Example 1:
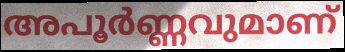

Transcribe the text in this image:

അപൂർണ്ണവുമാണ്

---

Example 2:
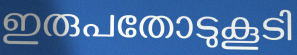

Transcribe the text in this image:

ഇരുപതോടുകൂടി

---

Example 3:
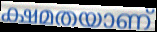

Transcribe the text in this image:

ക്ഷമതയാണ്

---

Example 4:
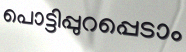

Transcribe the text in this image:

പൊട്ടിപ്പുറപ്പെടാം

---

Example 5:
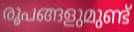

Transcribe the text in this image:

രൂപങ്ങളുമുണ്ട്